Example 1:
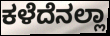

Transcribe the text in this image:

ಕಳೆದೆನಲ್ಲಾ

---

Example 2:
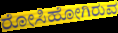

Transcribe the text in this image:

ರೋಸಿಹೋಗಿರುವ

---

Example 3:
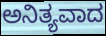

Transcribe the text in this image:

ಅನಿತ್ಯವಾದ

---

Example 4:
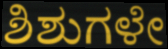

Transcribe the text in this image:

ಶಿಶುಗಳೇ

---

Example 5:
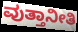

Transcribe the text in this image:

ವುತ್ತಾನೀತಿ